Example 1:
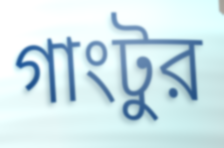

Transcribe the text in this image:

গাংটুর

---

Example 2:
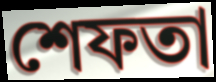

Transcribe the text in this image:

শেফতা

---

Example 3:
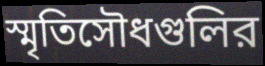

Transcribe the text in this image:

স্মৃতিসৌধগুলির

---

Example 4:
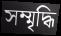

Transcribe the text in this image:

সম্মৃদ্ধি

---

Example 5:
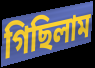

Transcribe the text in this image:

গিছিলাম